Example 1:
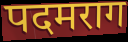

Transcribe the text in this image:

पदमराग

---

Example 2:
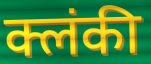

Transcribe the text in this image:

क्लंकी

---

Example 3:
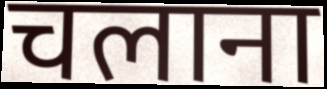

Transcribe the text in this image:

चलाना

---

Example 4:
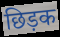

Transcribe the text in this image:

छिड़क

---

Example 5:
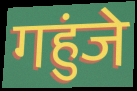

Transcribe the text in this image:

गहुंजे